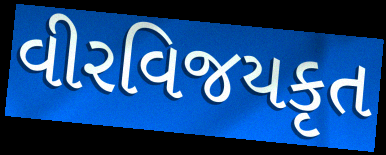
વીરવિજયકૃત